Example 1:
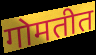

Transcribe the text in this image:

गोमतीत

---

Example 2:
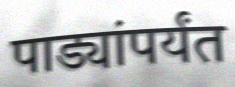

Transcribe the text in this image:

पाड्यांपर्यंत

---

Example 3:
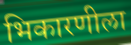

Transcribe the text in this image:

भिकारणीला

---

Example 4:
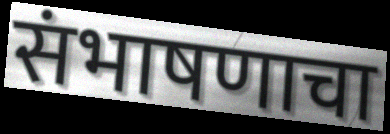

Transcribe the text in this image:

संभाषणाचा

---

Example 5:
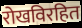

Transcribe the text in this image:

रोखविरहित